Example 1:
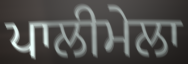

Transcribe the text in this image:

ਪਾਲੀਮੇਲਾ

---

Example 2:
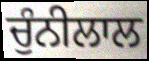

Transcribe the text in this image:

ਚੁੰਨੀਲਾਲ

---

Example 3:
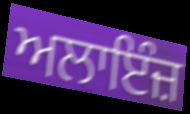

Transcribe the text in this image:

ਅਲਾਇੰਜ਼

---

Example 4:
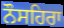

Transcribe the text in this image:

ਨੌਸਹਿਰਾ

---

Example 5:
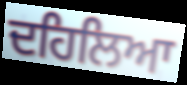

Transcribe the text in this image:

ਦਹਿਲਿਆ